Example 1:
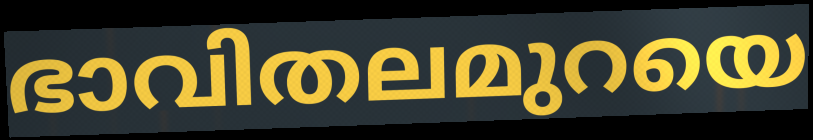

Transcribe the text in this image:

ഭാവിതലമുറയെ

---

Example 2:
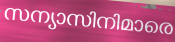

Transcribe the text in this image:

സന്യാസിനിമാരെ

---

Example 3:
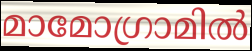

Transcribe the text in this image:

മാമോഗ്രാമിൽ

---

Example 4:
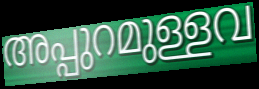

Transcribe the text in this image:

അപ്പുറമുള്ളവ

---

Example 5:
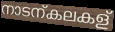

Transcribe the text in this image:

നാടന്കലകള്